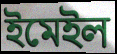
ইমেইল